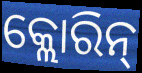
କ୍ଲୋରିନ୍